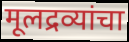
मूलद्रव्यांचा